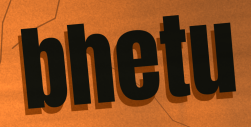
bhetu